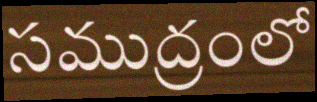
సముద్రంలో